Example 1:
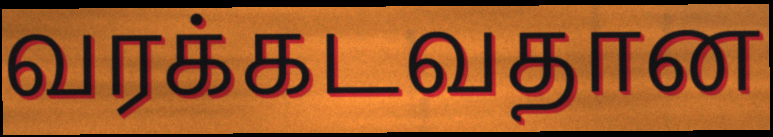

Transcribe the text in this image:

வரக்கடவதான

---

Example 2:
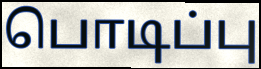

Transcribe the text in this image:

பொடிப்பு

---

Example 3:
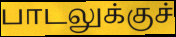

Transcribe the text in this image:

பாடலுக்குச்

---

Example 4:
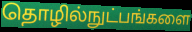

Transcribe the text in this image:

தொழில்நுட்பங்களை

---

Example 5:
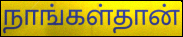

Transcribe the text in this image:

நாங்கள்தான்